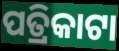
ପତ୍ରିକାଟା